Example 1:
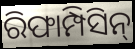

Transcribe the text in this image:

ରିଫାମ୍ପିସିନ୍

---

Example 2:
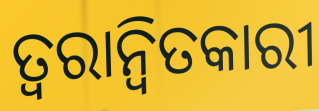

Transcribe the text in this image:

ତ୍ୱରାନ୍ୱିତକାରୀ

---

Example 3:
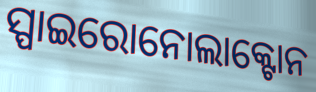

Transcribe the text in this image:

ସ୍ପାଇରୋନୋଲାକ୍ଟୋନ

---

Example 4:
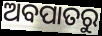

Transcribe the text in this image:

ଅବପାତରୁ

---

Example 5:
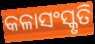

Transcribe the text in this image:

କଳାସଂସ୍କୃତି